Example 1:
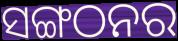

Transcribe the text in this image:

ସଙ୍ଗଠନର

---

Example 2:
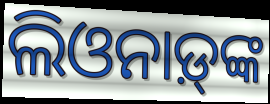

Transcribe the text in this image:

ଲିଓନାଡ଼୍‌ଙ୍କ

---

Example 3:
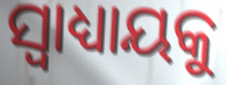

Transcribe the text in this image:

ସ୍ୱାଧ୍ୟାୟକୁ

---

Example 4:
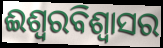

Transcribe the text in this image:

ଈଶ୍ୱରବିଶ୍ୱାସର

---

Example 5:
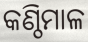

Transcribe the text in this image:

କଣ୍ଠିମାଳ